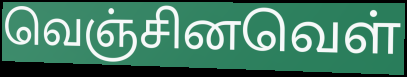
வெஞ்சினவெள்